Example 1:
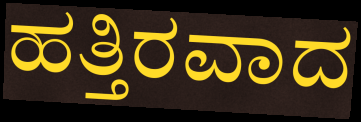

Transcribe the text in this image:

ಹತ್ತಿರವಾದ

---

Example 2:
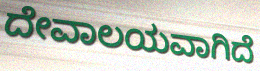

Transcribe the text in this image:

ದೇವಾಲಯವಾಗಿದೆ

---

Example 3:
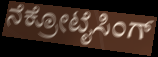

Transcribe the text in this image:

ನೆಕ್ರೋಟೈಸಿಂಗ್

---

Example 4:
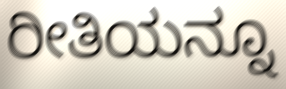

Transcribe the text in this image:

ರೀತಿಯನ್ನೂ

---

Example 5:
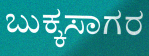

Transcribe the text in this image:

ಬುಕ್ಕಸಾಗರ